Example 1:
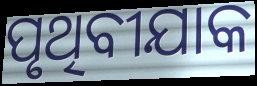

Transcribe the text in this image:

ପୃଥିବୀଯାକ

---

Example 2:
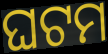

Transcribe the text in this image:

ଘଟମ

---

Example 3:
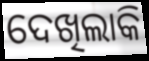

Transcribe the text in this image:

ଦେଖିଲାକି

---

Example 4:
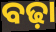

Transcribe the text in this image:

ବଢ଼ା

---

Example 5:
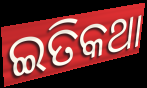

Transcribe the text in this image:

ଇତିକଥା